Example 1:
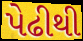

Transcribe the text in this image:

પેઢીથી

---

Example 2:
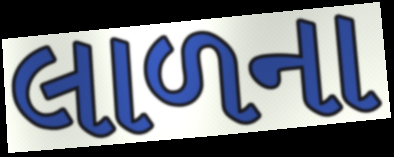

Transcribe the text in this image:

લાળના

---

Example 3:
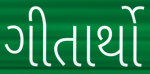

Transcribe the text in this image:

ગીતાર્થો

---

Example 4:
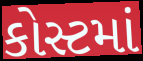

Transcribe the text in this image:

કોસ્ટમાં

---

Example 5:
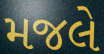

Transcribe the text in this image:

મજલે